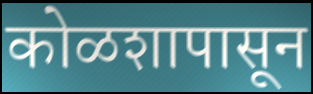
कोळशापासून